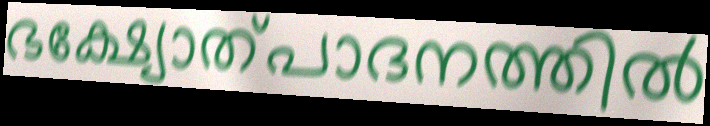
ഭക്ഷ്യോത്പാദനത്തിൽ